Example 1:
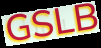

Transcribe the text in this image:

GSLB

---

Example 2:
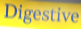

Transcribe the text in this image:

Digestive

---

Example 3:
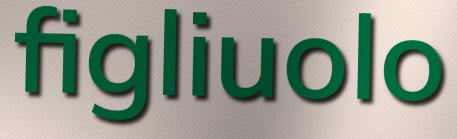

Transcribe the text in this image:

figliuolo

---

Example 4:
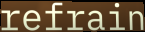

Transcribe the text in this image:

refrain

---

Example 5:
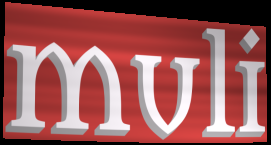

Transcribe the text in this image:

muli